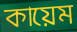
কায়েম